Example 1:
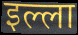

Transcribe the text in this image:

इल्ला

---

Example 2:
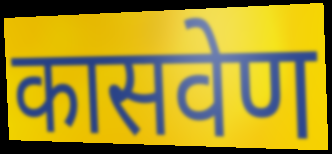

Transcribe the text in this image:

कासवेण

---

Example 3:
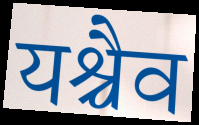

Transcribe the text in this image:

यश्चैव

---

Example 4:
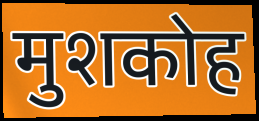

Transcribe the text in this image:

मुशकोह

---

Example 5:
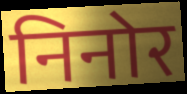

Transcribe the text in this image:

निनोर